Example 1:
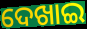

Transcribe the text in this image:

ଦେଖାଇ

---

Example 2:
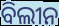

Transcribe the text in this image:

ବିଲୀନ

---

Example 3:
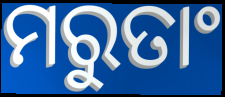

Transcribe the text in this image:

ମରୁତାଂ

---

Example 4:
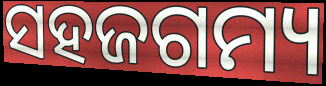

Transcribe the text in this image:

ସହଜଗମ୍ୟ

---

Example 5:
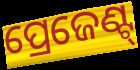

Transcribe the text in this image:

ପ୍ରେଜେଣ୍ଟ୍